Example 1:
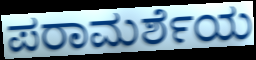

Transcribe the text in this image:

ಪರಾಮರ್ಶೆಯ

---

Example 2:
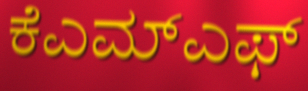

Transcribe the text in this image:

ಕೆಎಮ್ಎಫ್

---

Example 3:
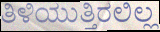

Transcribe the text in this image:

ತಿಳಿಯುತ್ತಿರಲಿಲ್ಲ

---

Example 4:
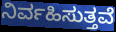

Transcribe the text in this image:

ನಿರ್ವಹಿಸುತ್ತವೆ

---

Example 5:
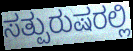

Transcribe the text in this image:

ಸತ್ಪುರುಷರಲ್ಲಿ